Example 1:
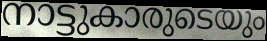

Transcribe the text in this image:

നാട്ടുകാരുടെയും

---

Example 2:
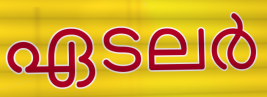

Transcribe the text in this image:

ഏടലർ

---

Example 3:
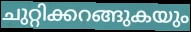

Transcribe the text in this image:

ചുറ്റിക്കറങ്ങുകയും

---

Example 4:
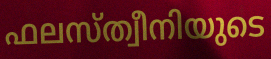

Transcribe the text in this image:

ഫലസ്ത്വീനിയുടെ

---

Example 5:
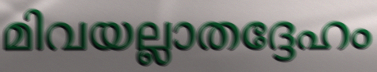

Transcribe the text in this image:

മിവയല്ലാതദ്ദേഹം